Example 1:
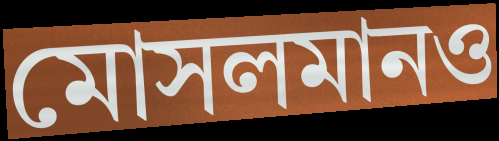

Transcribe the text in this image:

মোসলমানও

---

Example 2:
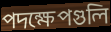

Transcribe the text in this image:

পদক্ষেপগুলি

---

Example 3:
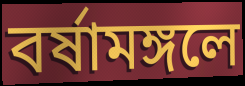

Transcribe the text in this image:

বর্ষামঙ্গলে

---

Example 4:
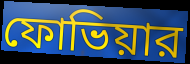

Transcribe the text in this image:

ফোভিয়ার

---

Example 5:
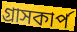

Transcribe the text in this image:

গ্রাসকার্প